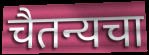
चैतन्यचा